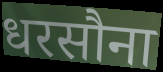
धरसौना